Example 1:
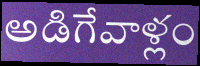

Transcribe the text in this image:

అడిగేవాళ్లం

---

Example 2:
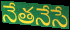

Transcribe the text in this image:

నేతనేసే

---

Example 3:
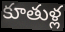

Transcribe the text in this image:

కూతుళ్ల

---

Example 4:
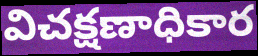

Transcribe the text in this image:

విచక్షణాధికార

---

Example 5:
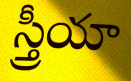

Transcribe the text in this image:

స్త్రీయా